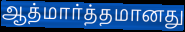
ஆத்மார்த்தமானது